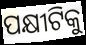
ପକ୍ଷୀଟିକୁ